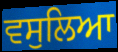
ਵਸੁਲਿਆ